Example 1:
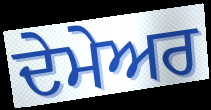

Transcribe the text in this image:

ਦੇਮੇਅਰ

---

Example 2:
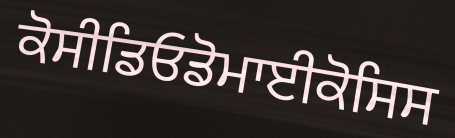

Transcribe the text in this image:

ਕੋਸੀਡਿਓਡੋਮਾਈਕੋਸਿਸ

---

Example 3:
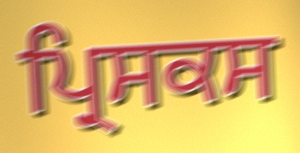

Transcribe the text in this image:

ਪ੍ਰਿਸਕਸ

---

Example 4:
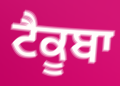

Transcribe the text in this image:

ਟੈਕੂਬਾ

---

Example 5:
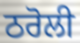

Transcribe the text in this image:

ਠਰੋਲੀ